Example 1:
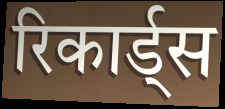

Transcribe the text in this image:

रिकार्ड्स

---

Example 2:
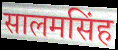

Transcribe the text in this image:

सालमसिंह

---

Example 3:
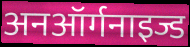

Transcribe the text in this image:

अनऑर्गनाइज्ड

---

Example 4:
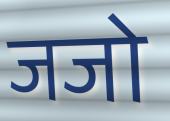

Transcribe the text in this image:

जजो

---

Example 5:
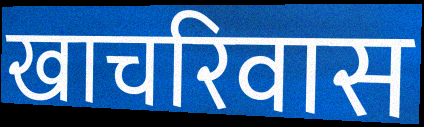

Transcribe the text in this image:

खाचरिवास